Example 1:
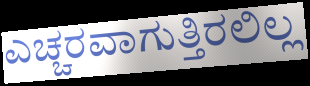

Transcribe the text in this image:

ಎಚ್ಚರವಾಗುತ್ತಿರಲಿಲ್ಲ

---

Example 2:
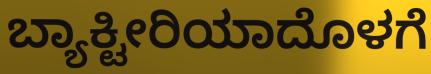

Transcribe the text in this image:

ಬ್ಯಾಕ್ಟೀರಿಯಾದೊಳಗೆ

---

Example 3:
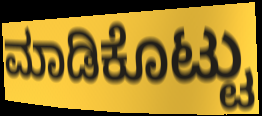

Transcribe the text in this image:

ಮಾಡಿಕೊಟ್ಟು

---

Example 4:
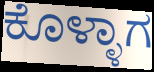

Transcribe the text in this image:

ಕೊಳ್ಳಾಗ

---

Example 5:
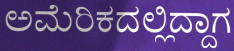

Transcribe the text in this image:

ಅಮೆರಿಕದಲ್ಲಿದ್ದಾಗ